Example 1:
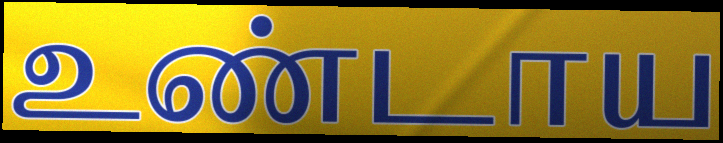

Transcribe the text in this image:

உண்டாய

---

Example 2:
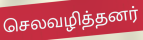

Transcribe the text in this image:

செலவழித்தனர்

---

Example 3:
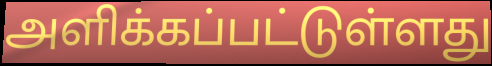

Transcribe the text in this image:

அளிக்கப்பட்டுள்ளது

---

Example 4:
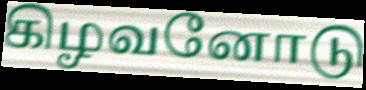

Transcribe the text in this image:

கிழவனோடு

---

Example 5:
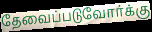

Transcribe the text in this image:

தேவைப்படுவோர்க்கு